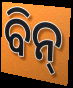
ବିନ୍